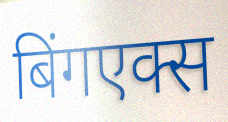
बिंगएक्स